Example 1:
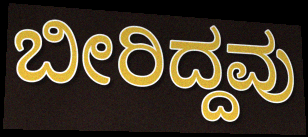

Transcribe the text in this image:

ಬೀರಿದ್ದವು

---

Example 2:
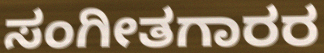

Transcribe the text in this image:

ಸಂಗೀತಗಾರರ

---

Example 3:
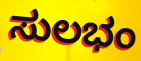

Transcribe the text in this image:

ಸುಲಭಂ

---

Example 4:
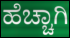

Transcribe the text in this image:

ಹೆಚ್ಚಾಗಿ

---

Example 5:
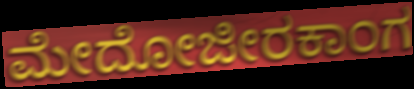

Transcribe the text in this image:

ಮೇದೋಜೀರಕಾಂಗ